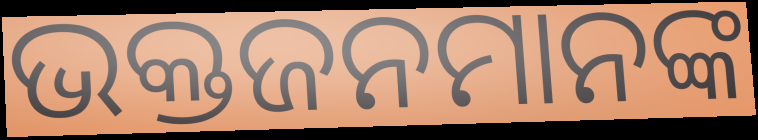
ଭକ୍ତଜନମାନଙ୍କ